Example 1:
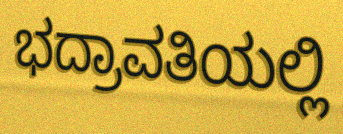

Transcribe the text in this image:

ಭದ್ರಾವತಿಯಲ್ಲಿ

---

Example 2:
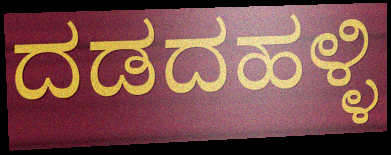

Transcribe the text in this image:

ದಡದಹಳ್ಳಿ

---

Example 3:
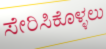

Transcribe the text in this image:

ಸೇರಿಸಿಕೊಳ್ಳಲು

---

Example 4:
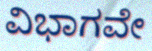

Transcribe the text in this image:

ವಿಭಾಗವೇ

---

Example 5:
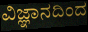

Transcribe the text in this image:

ವಿಜ್ಞಾನದಿಂದ